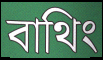
বাথিং